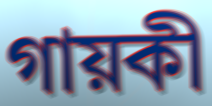
গায়কী